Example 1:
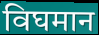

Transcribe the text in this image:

विघमान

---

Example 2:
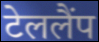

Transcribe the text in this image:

टेललैंप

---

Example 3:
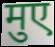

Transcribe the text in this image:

मुए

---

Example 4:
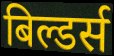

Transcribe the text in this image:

बिल्डर्स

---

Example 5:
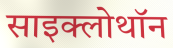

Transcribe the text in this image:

साइक्लोथॉन